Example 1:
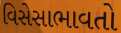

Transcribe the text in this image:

વિસેસાભાવતો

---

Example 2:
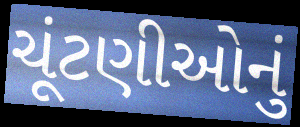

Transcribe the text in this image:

ચૂંટણીઓનું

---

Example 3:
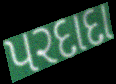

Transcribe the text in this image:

પરદાદા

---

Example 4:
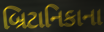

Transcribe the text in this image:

બ્રિટાનિકાના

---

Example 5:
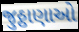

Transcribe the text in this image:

જુઠ્ઠાણાઓ